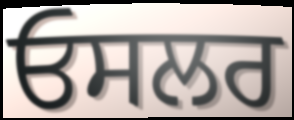
ਓਸਲਰ